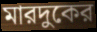
মারদুকের